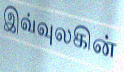
இவ்வுலகின்